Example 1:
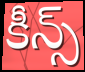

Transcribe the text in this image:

కీన్స్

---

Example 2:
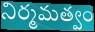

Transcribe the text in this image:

నిర్మమత్వం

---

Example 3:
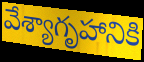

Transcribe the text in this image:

వేశ్యాగృహానికి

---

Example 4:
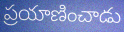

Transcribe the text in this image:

ప్రయాణించాడు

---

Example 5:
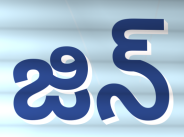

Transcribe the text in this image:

జిన్